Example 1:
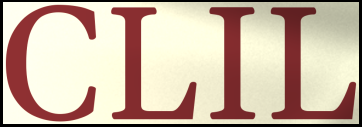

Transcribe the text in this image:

CLIL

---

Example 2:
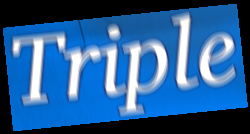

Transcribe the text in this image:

Triple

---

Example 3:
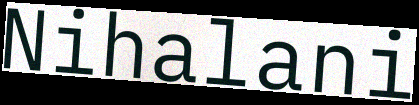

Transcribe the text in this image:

Nihalani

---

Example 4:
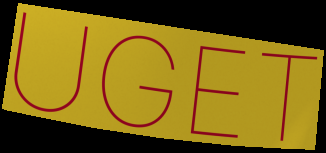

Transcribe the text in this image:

UGET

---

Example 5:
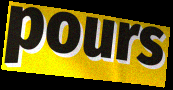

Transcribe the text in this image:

pours